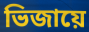
ভিজায়ে